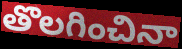
తొలగించినా